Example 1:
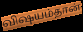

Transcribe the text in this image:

விஷயம்தான்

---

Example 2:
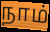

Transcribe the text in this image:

நாம்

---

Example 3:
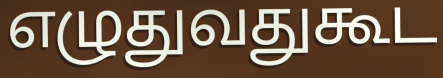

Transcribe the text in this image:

எழுதுவதுகூட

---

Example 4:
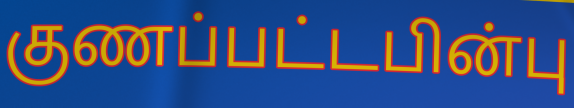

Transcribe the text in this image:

குணப்பட்டபின்பு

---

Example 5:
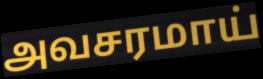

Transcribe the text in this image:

அவசரமாய்